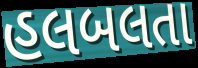
હલબલતા